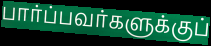
பார்ப்பவர்களுக்குப்